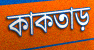
কাকতাড়